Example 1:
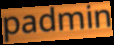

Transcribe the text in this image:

padmin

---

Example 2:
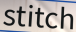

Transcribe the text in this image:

stitch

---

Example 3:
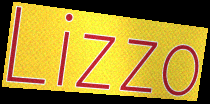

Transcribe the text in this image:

Lizzo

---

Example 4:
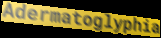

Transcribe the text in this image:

Adermatoglyphia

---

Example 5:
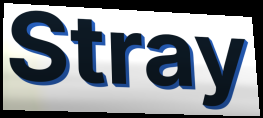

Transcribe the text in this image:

Stray